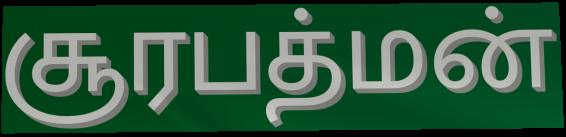
சூரபத்மன்